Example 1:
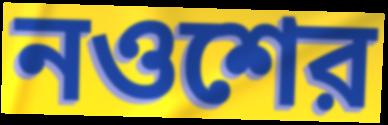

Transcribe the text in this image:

নওশের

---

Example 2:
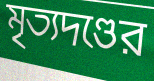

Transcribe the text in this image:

মৃত্যদণ্ডের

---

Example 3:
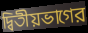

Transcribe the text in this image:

দ্বিতীয়ভাগের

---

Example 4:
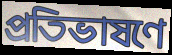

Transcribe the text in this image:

প্রতিভাষণে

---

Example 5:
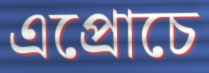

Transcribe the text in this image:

এপ্রোচে